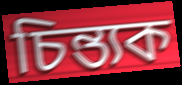
চিন্ত্যক